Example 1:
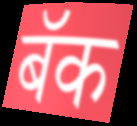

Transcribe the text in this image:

बॅक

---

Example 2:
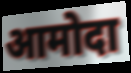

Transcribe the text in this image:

आमोदा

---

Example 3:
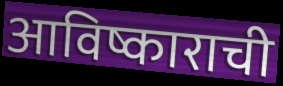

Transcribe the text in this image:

आविष्काराची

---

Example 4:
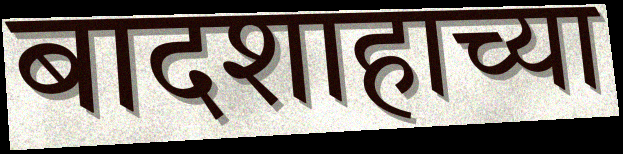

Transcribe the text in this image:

बादशाहाच्या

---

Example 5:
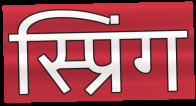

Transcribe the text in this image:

स्प्रिंग